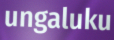
ungaluku